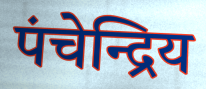
पंचेन्द्रिय